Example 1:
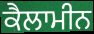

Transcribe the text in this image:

ਕੈਲਾਮੀਨ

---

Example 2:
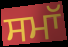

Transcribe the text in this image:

ਸਮਾੱ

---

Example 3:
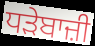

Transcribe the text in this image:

ਧੜੇਬਾਜ਼ੀ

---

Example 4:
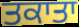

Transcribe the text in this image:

ਤਕਾਤਾ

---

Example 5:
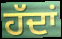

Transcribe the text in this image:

ਹੱਦਾਂ